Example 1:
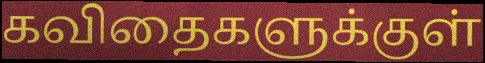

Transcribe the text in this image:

கவிதைகளுக்குள்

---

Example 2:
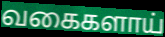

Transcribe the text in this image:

வகைகளாய்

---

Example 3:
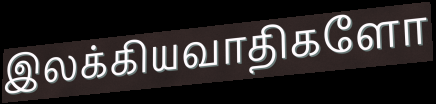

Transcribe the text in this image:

இலக்கியவாதிகளோ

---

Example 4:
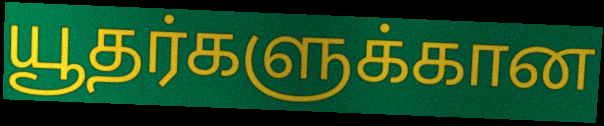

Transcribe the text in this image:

யூதர்களுக்கான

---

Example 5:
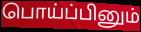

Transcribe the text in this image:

பொய்ப்பினும்